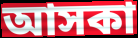
আসকা